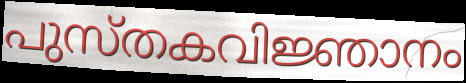
പുസ്തകവിജ്ഞാനം